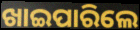
ଖାଇପାରିଲେ